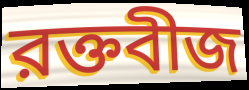
রক্তবীজ